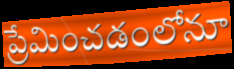
ప్రేమించడంలోనూ